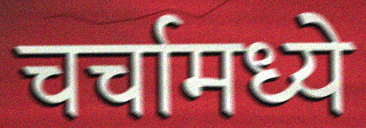
चर्चामध्ये